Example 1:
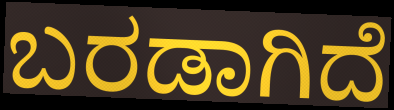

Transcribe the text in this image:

ಬರಡಾಗಿದೆ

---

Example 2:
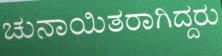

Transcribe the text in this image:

ಚುನಾಯಿತರಾಗಿದ್ದರು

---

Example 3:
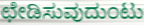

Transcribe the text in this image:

ಛೇಡಿಸುವುದುಂಟು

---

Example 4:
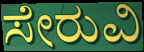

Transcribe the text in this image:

ಸೇರುವಿ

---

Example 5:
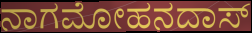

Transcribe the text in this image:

ನಾಗಮೋಹನದಾಸ್